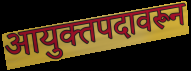
आयुक्तपदावरून